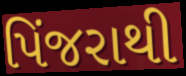
પિંજરાથી